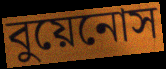
বুয়েনোস